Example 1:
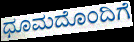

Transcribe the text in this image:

ಧೂಮದೊಂದಿಗೆ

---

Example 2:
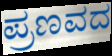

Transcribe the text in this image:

ಪ್ರಣವದ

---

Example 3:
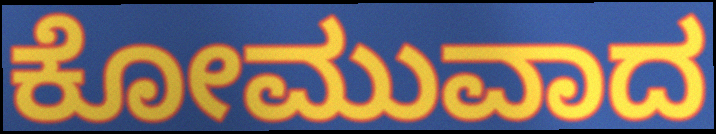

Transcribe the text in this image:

ಕೋಮುವಾದ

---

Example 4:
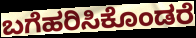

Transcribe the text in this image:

ಬಗೆಹರಿಸಿಕೊಂಡರೆ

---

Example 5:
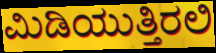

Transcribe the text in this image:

ಮಿಡಿಯುತ್ತಿರಲಿ